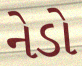
નેડો